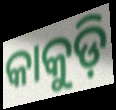
କାକୁଡ଼ି